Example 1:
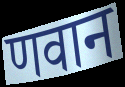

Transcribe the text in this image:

णवान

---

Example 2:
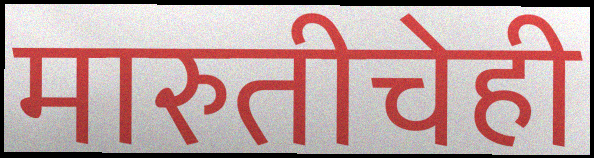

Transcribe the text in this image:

मारुतीचेही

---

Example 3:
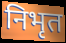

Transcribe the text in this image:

निभृत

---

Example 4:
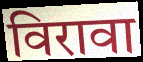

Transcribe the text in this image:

विरावा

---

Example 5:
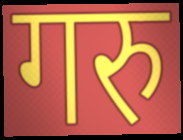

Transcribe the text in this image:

गरु